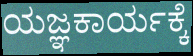
ಯಜ್ಞಕಾರ್ಯಕ್ಕೆ